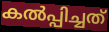
കൽപ്പിച്ചത്